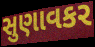
સુણાવકર